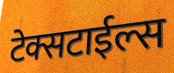
टेक्सटाईल्स